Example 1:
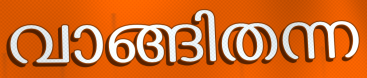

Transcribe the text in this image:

വാങ്ങിതന്ന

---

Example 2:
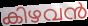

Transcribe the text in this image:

കിഴവൻ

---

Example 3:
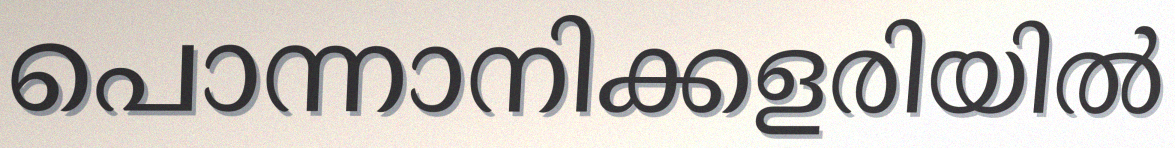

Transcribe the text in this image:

പൊന്നാനിക്കളരിയിൽ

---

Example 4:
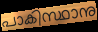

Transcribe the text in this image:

പാകിസ്ഥാനു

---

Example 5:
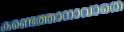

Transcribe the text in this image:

കണ്ടെത്താനാവാതെ